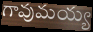
గావుమయ్య